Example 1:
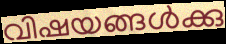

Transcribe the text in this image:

വിഷയങ്ങൾക്കു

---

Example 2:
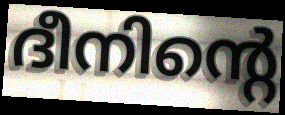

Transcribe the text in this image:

ദീനിന്റെ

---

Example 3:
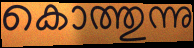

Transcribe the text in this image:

കൊത്തുന്നു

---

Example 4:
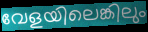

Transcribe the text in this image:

വേളയിലെങ്കിലും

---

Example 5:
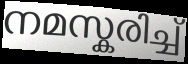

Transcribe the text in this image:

നമസ്കരിച്ച്